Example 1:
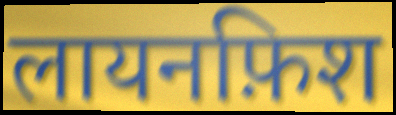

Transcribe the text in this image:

लायनफ़िश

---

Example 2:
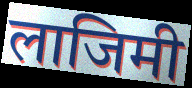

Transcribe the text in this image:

लाजिमी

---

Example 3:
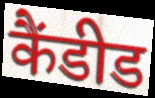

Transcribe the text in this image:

कैंडीड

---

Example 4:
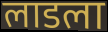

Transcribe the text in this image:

लाडला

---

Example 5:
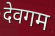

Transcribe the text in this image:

देवगम